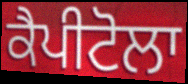
ਕੈਪੀਟੋਲਾ